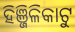
ହିଞ୍ଜିଳିକାଟୁ